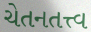
ચેતનતત્ત્વ